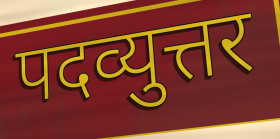
पदव्युत्तर